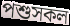
পশুসকল